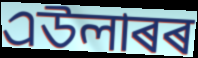
এউলাৰৰ